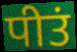
पीउं